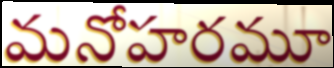
మనోహరమూ